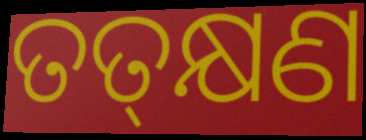
ତତ୍‌କ୍ଷଣ